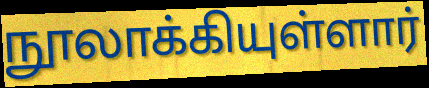
நூலாக்கியுள்ளார்